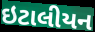
ઇટાલીયન